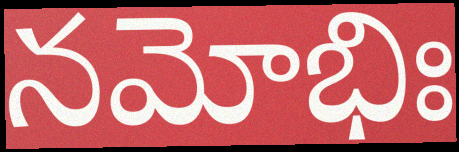
నమోభిః